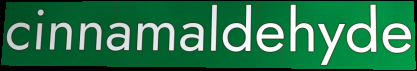
cinnamaldehyde